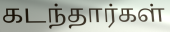
கடந்தார்கள்